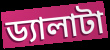
ড্যালাটা